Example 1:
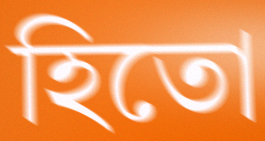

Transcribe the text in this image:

হিতো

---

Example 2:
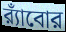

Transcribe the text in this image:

র‍্যাঁবোর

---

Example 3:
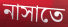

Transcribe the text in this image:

নাসাতে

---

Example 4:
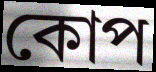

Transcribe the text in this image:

কোপ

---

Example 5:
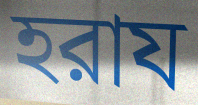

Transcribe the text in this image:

হরায